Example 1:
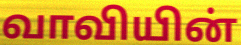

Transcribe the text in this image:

வாவியின்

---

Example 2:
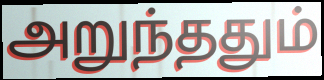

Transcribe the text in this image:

அறுந்ததும்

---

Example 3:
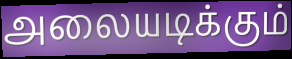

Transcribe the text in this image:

அலையடிக்கும்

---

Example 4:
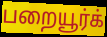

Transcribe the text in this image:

பறையூர்க்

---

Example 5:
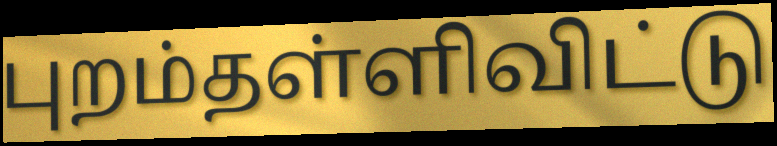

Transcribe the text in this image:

புறம்தள்ளிவிட்டு